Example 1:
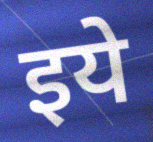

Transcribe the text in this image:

इये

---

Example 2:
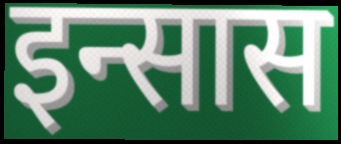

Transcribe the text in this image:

इन्सास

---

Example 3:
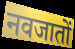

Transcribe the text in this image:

नवजातों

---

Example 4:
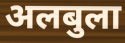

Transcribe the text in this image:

अलबुला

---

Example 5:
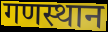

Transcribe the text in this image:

गणस्थान